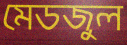
মেডজুল